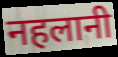
नहलानी